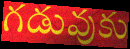
గడువుకు